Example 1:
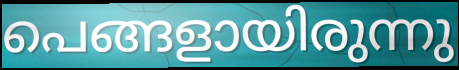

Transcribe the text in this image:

പെങ്ങളായിരുന്നു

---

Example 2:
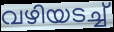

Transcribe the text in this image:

വഴിയടച്ച്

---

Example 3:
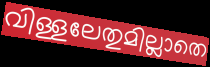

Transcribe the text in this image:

വിള്ളലേതുമില്ലാതെ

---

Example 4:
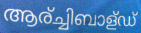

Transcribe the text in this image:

ആര്ച്ചിബാള്ഡ്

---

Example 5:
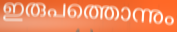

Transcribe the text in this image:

ഇരുപത്തൊന്നും